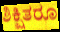
ಶಿಕ್ಷಿತರೂ